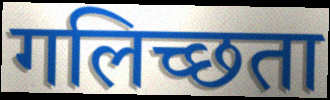
गलिच्छता